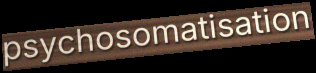
psychosomatisation